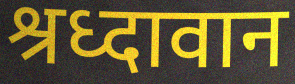
श्रध्दावान